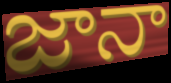
జానా